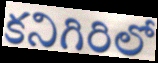
కనిగిరిలో